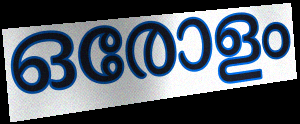
ഒരോളം